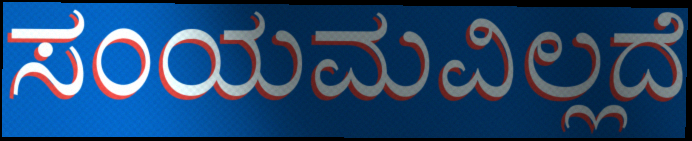
ಸಂಯಮವಿಲ್ಲದೆ